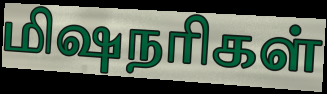
மிஷநரிகள்